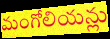
మంగోలియన్లు